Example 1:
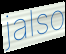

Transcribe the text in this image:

jalso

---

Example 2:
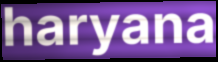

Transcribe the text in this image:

haryana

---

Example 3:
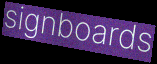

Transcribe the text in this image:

signboards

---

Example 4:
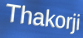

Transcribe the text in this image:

Thakorji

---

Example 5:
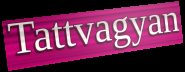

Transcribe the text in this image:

Tattvagyan